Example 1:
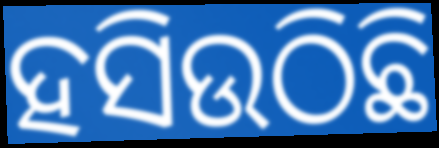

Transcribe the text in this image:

ହସିଉଠିଛି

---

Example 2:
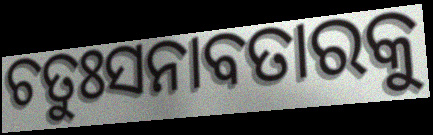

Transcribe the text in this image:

ଚତୁଃସନାବତାରକୁ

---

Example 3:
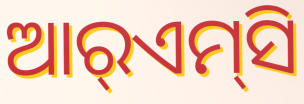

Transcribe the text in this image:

ଆର୍‌ଏମ୍‌ସି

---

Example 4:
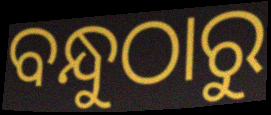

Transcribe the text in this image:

ବନ୍ଧୁଠାରୁ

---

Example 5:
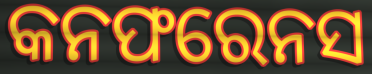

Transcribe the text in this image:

କନଫରେନସ